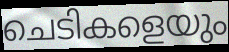
ചെടികളെയും